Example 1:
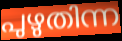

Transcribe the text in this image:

പുഴുതിന്ന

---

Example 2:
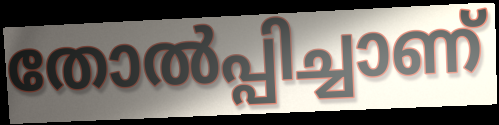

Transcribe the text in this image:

തോൽപ്പിച്ചാണ്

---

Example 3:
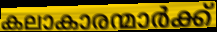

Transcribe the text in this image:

കലാകാരന്മാർക്ക്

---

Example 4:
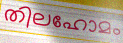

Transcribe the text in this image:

തിലഹോമം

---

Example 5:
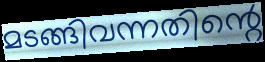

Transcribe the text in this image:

മടങ്ങിവന്നതിന്റെ